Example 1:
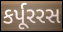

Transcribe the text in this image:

કર્પૂરરસ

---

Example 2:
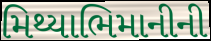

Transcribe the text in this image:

મિથ્યાભિમાનીની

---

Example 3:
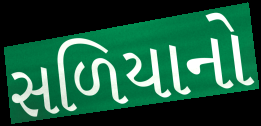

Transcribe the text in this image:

સળિયાનો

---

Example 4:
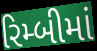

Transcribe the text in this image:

રિમ્બીમાં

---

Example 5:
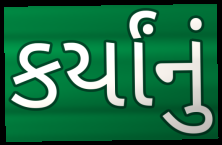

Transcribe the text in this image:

કર્યાંનું